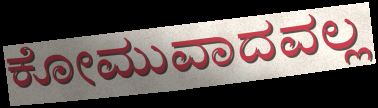
ಕೋಮುವಾದವಲ್ಲ